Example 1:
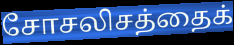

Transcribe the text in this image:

சோசலிசத்தைக்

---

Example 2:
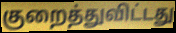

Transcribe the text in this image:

குறைத்துவிட்டது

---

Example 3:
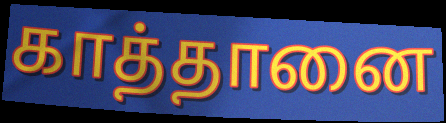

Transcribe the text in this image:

காத்தானை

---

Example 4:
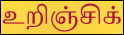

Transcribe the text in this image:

உறிஞ்சிக்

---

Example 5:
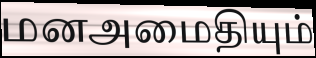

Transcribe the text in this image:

மனஅமைதியும்